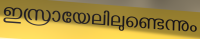
ഇസ്രായേലിലുണ്ടെന്നും